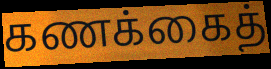
கணக்கைத்